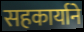
सहकार्याने